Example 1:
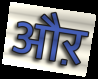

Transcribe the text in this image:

औऱ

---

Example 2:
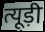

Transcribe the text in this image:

त्यूड़ी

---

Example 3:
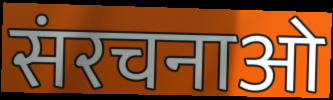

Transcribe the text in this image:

संरचनाओ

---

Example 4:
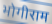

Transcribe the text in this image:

भोगीराम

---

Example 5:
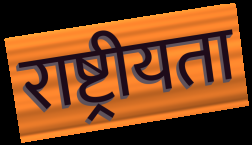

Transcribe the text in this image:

राष्ट्रीयता